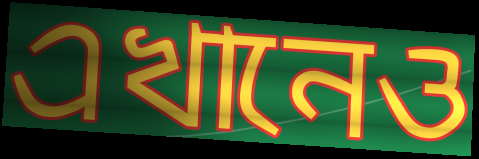
এখানেও